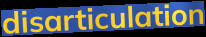
disarticulation